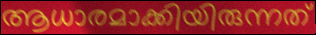
ആധാരമാക്കിയിരുന്നത്